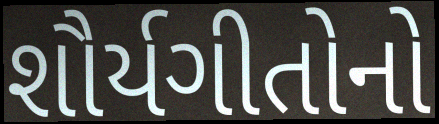
શૌર્યગીતોનો